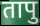
तापु